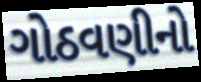
ગોઠવણીનો